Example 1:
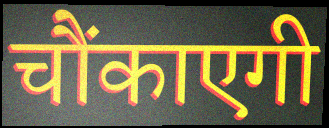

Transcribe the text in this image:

चौंकाएगी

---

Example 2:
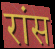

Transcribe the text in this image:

रांस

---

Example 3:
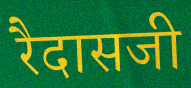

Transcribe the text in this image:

रैदासजी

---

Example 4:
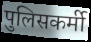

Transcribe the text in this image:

पुलिसकर्मी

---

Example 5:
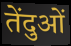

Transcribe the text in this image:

तेंदुओं